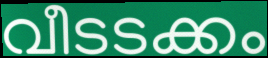
വീടടക്കം